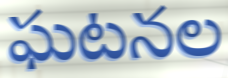
ఘటనల